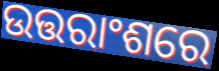
ଉତ୍ତରାଂଶରେ